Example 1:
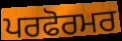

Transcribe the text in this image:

ਪਰਫੋਰਮਰ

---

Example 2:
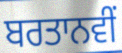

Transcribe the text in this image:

ਬਰਤਾਨਵੀਂ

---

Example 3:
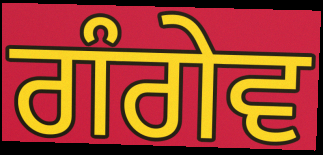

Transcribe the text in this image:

ਗੰਗੇਵ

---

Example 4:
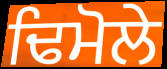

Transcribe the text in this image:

ਢਿਮੋਲੇ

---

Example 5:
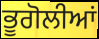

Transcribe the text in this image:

ਭੂਗੋਲੀਆਂ